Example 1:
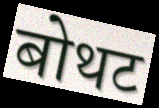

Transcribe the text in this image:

बोथट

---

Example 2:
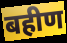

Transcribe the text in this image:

बहीण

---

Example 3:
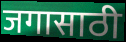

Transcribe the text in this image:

जगासाठी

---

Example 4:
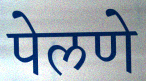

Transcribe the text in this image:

पेलणे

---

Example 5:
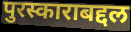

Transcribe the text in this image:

पुरस्काराबद्दल